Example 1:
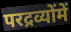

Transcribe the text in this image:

परद्रव्योंमें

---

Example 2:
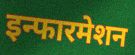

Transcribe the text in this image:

इन्फारमेशन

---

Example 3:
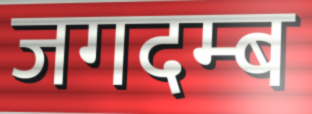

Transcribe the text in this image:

जगदम्ब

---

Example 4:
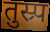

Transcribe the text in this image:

तुस्र्प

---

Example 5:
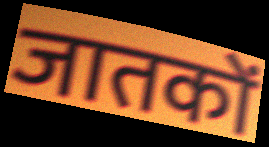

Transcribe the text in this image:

जातकों